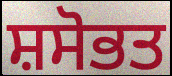
ਸ਼ਸੋਭਤ